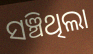
ସଞ୍ଚିଥିଲା